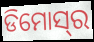
ଡିମୋସ୍‌ର